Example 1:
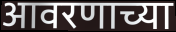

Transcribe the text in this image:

आवरणाच्या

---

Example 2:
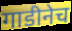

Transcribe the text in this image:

गाडीनेच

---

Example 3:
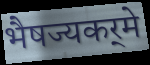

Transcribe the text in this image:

भैषज्यकर्मे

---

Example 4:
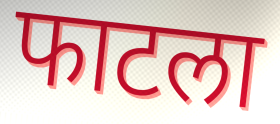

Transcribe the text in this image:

फाटला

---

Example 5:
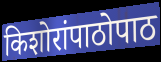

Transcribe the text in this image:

किशोरांपाठोपाठ